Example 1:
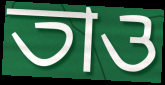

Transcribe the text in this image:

তাও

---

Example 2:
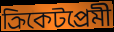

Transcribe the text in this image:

ক্রিকেটপ্রেমী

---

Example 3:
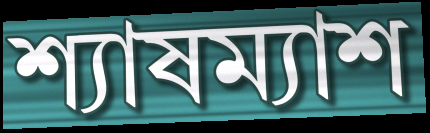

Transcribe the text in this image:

শ্যাষম্যাশ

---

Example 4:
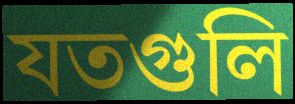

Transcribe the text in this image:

যতগুলি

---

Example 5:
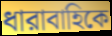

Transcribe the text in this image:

ধারাবাহিকে